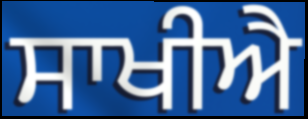
ਸਾਖੀਐ